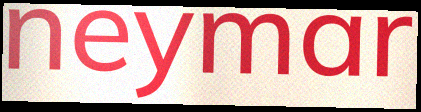
neymar